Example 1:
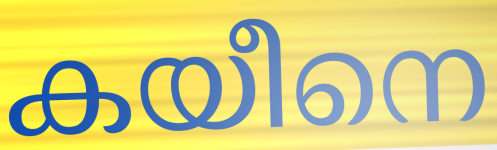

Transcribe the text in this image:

കയീനെ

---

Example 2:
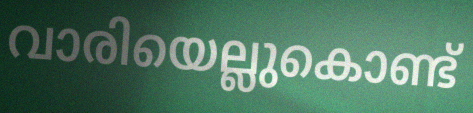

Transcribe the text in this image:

വാരിയെല്ലുകൊണ്ട്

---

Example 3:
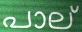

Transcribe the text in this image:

പാല്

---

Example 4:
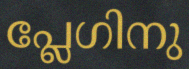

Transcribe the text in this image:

പ്ലേഗിനു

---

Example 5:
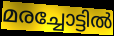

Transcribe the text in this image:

മരച്ചോട്ടിൽ